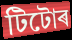
টিটোৰ